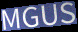
MGUS